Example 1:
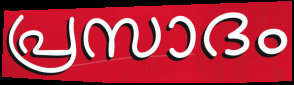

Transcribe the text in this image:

പ്രസാദം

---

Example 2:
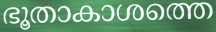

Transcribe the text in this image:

ഭൂതാകാശത്തെ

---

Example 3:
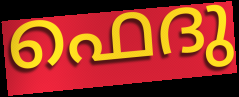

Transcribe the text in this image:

ഫെദു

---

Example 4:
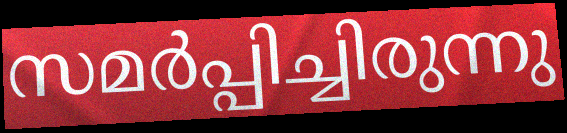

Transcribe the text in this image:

സമർപ്പിച്ചിരുന്നു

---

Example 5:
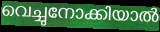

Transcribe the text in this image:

വെച്ചുനോക്കിയാൽ